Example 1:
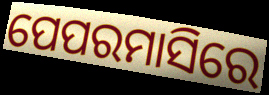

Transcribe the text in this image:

ପେପରମାସିରେ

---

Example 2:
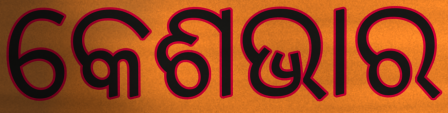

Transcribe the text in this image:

କେଶଭାର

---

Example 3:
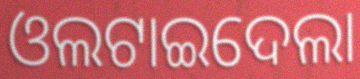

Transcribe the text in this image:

ଓଲଟାଇଦେଲା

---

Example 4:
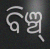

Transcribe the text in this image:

ବିଞ୍ଚ୍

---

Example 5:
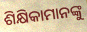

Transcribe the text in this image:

ଶିକ୍ଷିକାମାନଙ୍କୁ